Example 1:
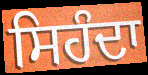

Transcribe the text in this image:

ਸਿਹੰਦਾ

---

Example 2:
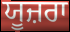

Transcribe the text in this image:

ਯੂਜ਼ਰਾ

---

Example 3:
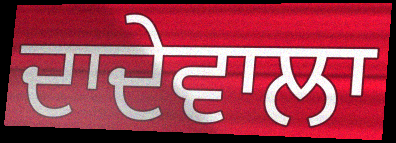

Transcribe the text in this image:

ਦਾਦੇਵਾਲਾ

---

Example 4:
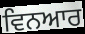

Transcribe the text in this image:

ਵਿਨਆਰ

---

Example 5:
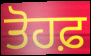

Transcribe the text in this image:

ਤੋਹਫ਼